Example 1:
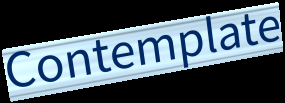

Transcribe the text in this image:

Contemplate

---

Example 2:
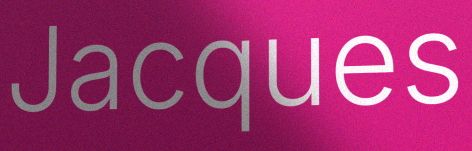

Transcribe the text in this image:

Jacques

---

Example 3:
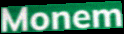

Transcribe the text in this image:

Monem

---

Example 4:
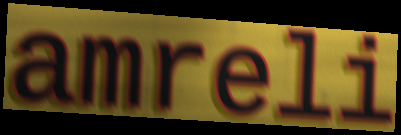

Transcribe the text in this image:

amreli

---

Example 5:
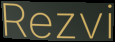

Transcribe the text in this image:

Rezvi